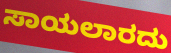
ಸಾಯಲಾರದು